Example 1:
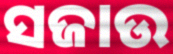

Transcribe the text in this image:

ସଜାଉ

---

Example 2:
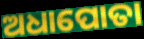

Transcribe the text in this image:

ଅଧାପୋତା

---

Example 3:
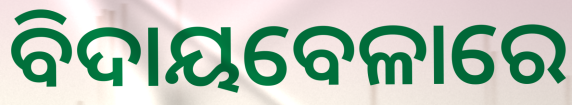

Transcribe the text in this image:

ବିଦାୟବେଳାରେ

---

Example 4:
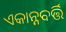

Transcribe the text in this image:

ଏକାନ୍ନବର୍ତ୍ତି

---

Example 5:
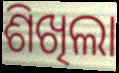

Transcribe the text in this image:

ଶିଖିଲା